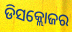
ଡିସକ୍ଲୋଜର